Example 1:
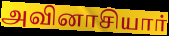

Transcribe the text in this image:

அவினாசியார்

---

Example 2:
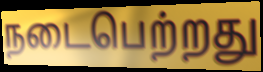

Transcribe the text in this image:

நடைபெற்றது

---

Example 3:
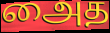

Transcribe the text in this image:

அைத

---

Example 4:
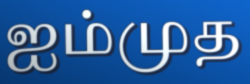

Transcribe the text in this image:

ஐம்முத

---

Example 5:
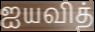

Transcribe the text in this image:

ஐயவித்